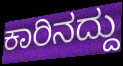
ಕಾರಿನದ್ದು